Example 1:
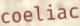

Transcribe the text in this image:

coeliac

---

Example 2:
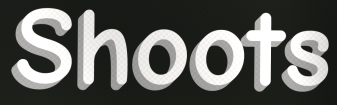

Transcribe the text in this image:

Shoots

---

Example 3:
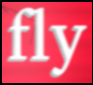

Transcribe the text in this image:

fly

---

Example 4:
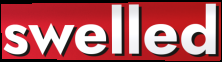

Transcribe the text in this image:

swelled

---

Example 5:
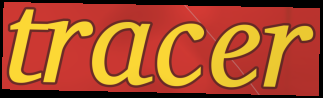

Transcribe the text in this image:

tracer